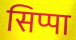
सिप्पा